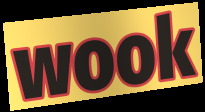
wook